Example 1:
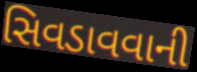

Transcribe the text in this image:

સિવડાવવાની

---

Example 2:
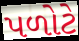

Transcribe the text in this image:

પળોટે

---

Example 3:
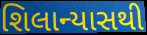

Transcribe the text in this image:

શિલાન્યાસથી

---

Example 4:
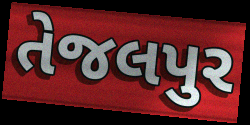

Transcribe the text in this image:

તેજલપુર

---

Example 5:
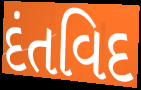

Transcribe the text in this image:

દંતવિદ